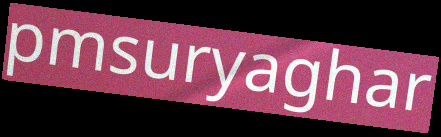
pmsuryaghar